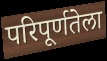
परिपूर्णतेला